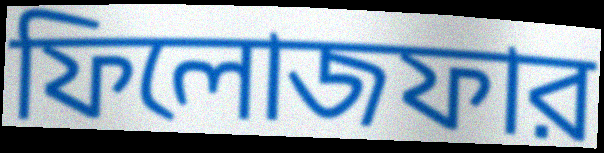
ফিলোজফার